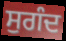
ਸੁਗੰਦ